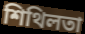
শিথিলতা